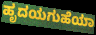
ಹೃದಯಗುಹೆಯಾ